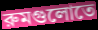
রুমগুলোতে